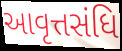
આવૃત્તસંધિ